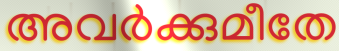
അവർക്കുമീതേ